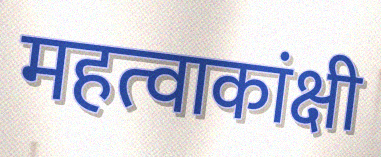
महत्‍वाकांक्षी